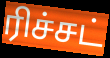
ரிச்சட்